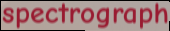
spectrograph